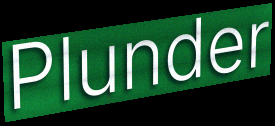
Plunder